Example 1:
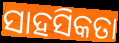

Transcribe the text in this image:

ସାହସିକତା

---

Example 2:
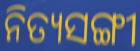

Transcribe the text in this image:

ନିତ୍ୟସଙ୍ଗୀ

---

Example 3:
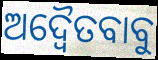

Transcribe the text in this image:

ଅଦ୍ୱୈତବାବୁ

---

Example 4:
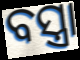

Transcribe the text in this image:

ବସ୍ତ୍ରା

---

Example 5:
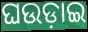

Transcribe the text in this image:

ଘଉଡ଼ାଇ